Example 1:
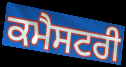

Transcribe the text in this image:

ਕਮੈਸਟਰੀ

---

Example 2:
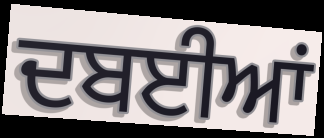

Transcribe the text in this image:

ਦਬਈਆਂ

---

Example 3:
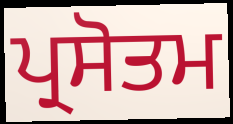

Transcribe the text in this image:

ਪ੍ਰਸੋਤਮ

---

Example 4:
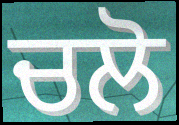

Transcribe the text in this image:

ਚਲੋ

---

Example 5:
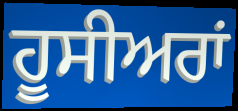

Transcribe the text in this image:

ਹੂਸੀਅਰਾਂ